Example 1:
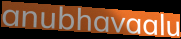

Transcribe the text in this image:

anubhavaalu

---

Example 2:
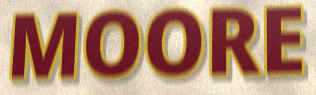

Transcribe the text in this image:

MOORE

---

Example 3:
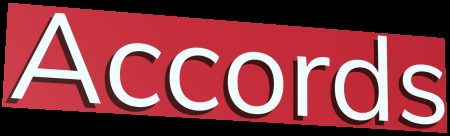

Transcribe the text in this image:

Accords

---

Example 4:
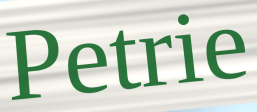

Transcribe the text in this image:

Petrie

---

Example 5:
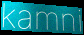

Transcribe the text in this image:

kamni